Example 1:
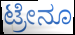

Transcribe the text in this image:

ಟ್ರೇನೂ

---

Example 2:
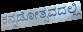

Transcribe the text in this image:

ಕನ್ನಡೋತ್ಸವದಲ್ಲಿ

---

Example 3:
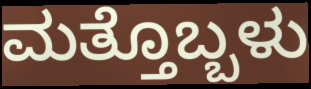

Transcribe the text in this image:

ಮತ್ತೊಬ್ಬಳು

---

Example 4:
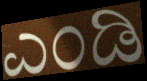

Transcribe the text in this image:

ಎಂಡಿ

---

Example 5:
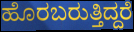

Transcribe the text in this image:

ಹೊರಬರುತ್ತಿದ್ದರೆ